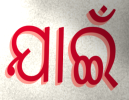
ଯାଇଁ